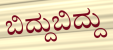
ಬಿದ್ದುಬಿದ್ದು